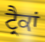
ਟ੍ਰੈਕਾਂ